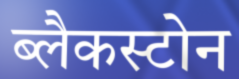
ब्‍लैकस्‍टोन